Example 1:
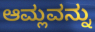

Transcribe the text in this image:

ಆಮ್ಲವನ್ನು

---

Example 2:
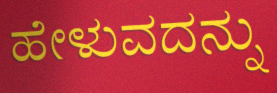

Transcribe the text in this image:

ಹೇಳುವದನ್ನು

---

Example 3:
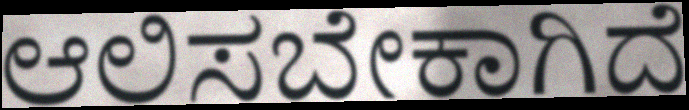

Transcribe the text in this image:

ಆಲಿಸಬೇಕಾಗಿದೆ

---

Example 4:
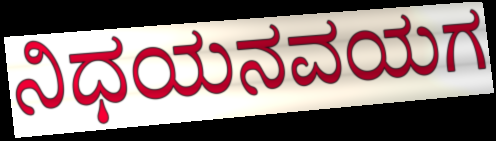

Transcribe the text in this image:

ನಿಧಯನವಯಗ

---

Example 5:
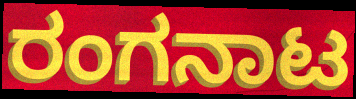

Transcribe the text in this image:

ರಂಗನಾಟ